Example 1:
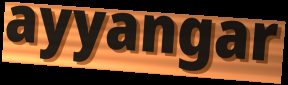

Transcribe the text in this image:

ayyangar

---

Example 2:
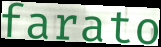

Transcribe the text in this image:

farato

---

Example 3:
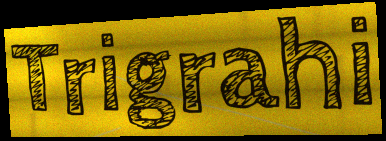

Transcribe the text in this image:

Trigrahi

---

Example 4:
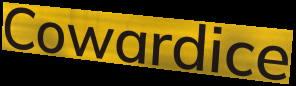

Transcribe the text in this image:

Cowardice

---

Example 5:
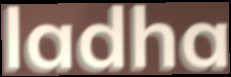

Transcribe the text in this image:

ladha